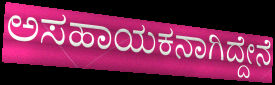
ಅಸಹಾಯಕನಾಗಿದ್ದೇನೆ